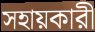
সহায়কারী